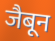
जैबून